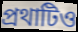
প্রথাটিও